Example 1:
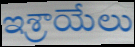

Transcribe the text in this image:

ఇశ్రాయేలు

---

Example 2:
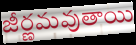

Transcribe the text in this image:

జీర్ణమవుతాయి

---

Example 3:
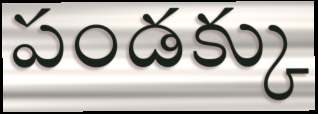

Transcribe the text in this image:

పండక్కు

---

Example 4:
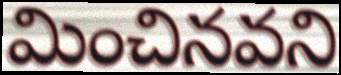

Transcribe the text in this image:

మించినవని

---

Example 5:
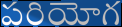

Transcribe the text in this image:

పరియోగ